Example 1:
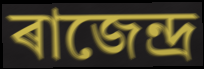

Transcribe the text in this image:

ৰাজেন্দ্ৰ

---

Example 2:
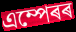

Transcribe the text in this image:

এম্পেৰৰ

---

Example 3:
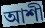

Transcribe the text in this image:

আশী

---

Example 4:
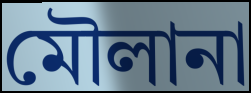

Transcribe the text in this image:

মৌলানা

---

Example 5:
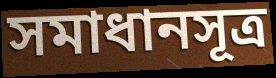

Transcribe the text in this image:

সমাধানসূত্ৰ